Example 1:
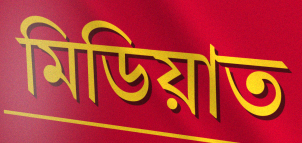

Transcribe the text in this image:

মিডিয়াত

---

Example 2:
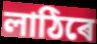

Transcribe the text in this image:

লাঠিৰে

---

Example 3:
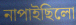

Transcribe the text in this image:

নাপাইছিলো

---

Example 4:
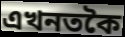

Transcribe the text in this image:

এখনতকৈ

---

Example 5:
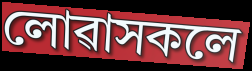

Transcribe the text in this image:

লোৱাসকলে